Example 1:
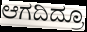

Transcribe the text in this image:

ಆಗದಿದ್ರೂ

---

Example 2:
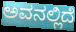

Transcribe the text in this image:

ಅವನಲ್ಲಿದೆ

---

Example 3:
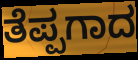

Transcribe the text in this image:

ತೆಪ್ಪಗಾದ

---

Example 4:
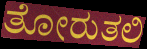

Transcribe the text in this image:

ತೋರುತಲಿ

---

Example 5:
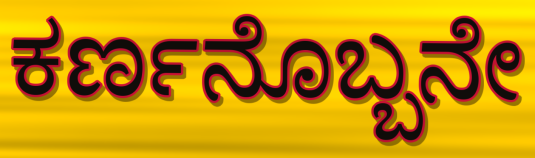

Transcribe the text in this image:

ಕರ್ಣನೊಬ್ಬನೇ